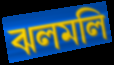
ঝলমলি